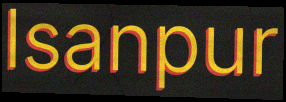
Isanpur